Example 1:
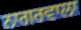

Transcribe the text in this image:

ਨਾਗਰਵਾਲਾ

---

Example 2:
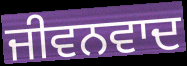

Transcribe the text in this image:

ਜੀਵਨਵਾਦ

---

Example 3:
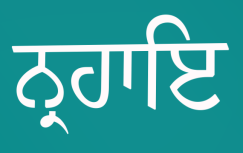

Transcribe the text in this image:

ਨ੍ਰਹਾਇ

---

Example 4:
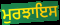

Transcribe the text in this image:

ਮੁਰਝਾਇਸ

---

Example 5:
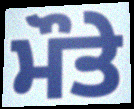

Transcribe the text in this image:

ਮੌਤੇ